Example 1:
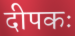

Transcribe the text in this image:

दीपकः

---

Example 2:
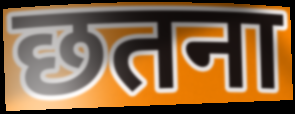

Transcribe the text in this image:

छतना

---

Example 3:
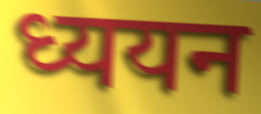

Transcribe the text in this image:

ध्ययन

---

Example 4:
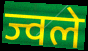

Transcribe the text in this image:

ज्वले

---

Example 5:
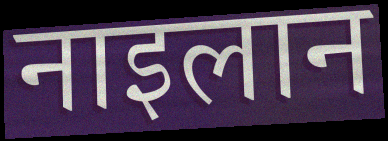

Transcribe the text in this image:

नाइलान